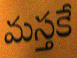
మస్తకే